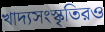
খাদ্যসংস্কৃতিরও